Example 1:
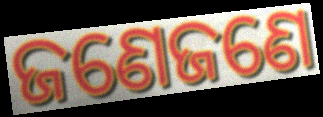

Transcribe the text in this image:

ଜଣେଜଣେ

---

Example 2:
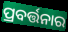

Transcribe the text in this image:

ପ୍ରବର୍ତ୍ତନାର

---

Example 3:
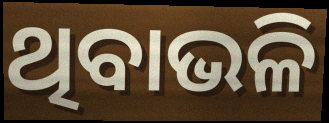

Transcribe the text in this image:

ଥିବାଭଳି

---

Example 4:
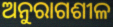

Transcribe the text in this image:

ଅନୁରାଗଶୀଳ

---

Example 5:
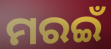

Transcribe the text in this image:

ମରଇଁ